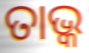
ତାଭ୍କ